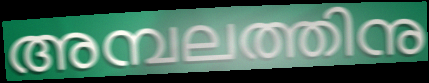
അമ്പലത്തിനു